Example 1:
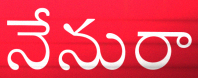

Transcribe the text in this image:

నేనురా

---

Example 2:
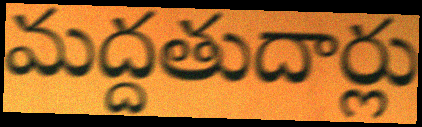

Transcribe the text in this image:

మద్దతుదార్లు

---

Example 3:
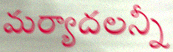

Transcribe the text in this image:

మర్యాదలన్నీ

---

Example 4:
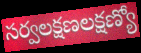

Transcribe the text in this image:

సర్వలక్షణలక్షణ్యో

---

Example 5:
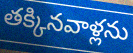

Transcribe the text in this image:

తక్కినవాళ్లను